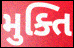
મુક્તિ